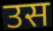
उस